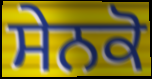
ਸੇਨਕੋ